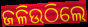
ଜଳିଉଠିଲେ